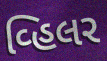
વ્હિલર